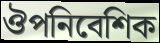
ঔপনিবেশিক